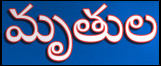
మృతుల